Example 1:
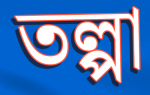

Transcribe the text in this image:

তল্পা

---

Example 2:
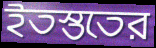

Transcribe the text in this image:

ইতস্ততের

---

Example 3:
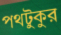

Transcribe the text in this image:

পথটুকুর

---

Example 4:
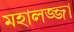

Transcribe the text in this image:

মহালজ্জা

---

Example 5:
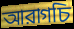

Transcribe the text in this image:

আরাগচি